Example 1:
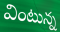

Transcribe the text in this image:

వింటున్న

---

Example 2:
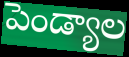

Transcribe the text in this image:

పెండ్యాల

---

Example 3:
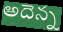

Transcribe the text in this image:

అదెన్న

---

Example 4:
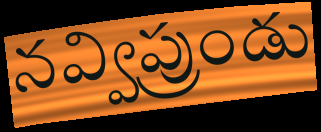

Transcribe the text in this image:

నవ్విప్రుండు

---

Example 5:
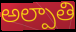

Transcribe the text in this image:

అల్పాతి